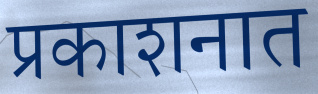
प्रकाशनात